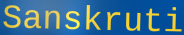
Sanskruti